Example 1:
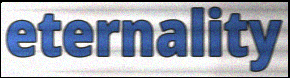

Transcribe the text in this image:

eternality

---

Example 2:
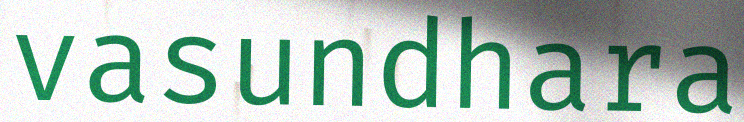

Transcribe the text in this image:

vasundhara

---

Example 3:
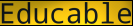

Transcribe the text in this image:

Educable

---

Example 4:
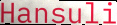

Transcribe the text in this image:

Hansuli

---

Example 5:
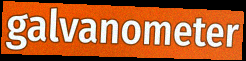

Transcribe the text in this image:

galvanometer